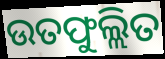
ଉତଫୁଲ୍ଲିତ